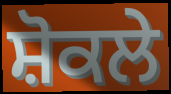
ਸ਼ੋਕਲੇ